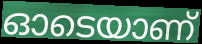
ഓടെയാണ്